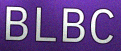
BLBC